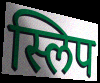
स्लिप